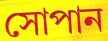
সোপান